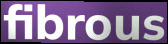
fibrous